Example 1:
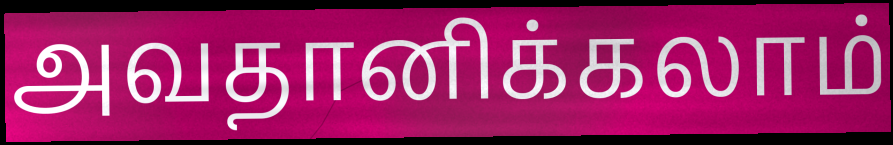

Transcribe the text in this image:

அவதானிக்கலாம்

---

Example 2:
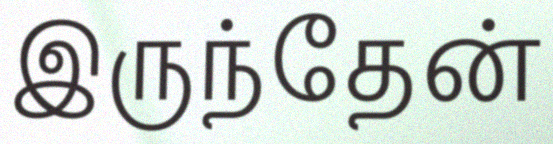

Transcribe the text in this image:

இருந்தேன்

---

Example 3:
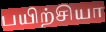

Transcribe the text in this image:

பயிற்சியா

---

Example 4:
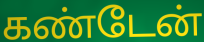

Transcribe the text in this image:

கண்டேன்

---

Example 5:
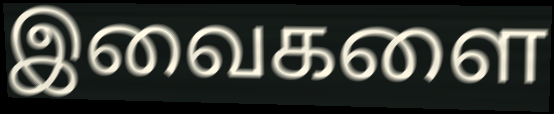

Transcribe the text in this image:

இவைகளை